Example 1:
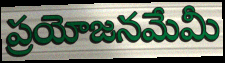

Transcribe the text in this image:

ప్రయోజనమేమీ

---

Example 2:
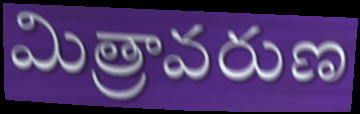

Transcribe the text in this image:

మిత్రావరుణ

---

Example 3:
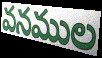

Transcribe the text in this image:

వనముల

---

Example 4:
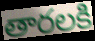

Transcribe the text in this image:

తారలకి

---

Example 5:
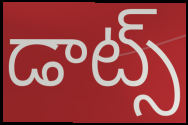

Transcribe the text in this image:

డాట్స్